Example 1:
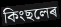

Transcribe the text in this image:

কিংছলেৰ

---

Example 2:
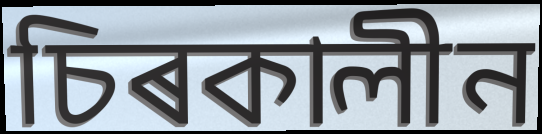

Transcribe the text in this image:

চিৰকালীন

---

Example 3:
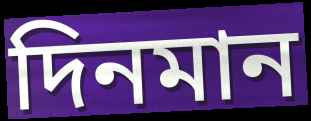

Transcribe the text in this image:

দিনমান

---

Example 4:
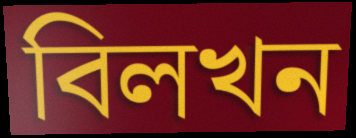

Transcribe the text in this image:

বিলখন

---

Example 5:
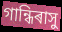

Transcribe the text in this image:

গান্ধিৰাসু